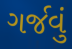
ગર્જવું